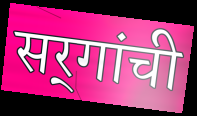
सर्गांची